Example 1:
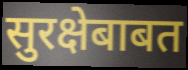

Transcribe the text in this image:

सुरक्षेबाबत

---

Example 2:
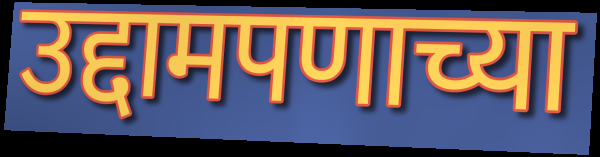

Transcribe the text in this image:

उद्दामपणाच्या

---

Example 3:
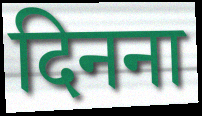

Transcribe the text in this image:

दिनना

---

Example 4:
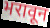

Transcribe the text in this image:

भरावून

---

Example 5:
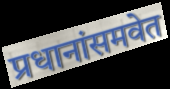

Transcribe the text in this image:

प्रधानांसमवेत